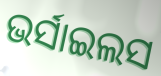
ଭର୍ସାଇଲସ